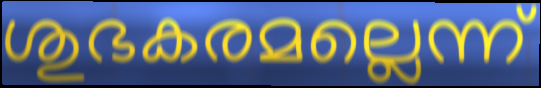
ശുഭകരമല്ലെന്ന്